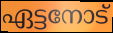
ഏട്ടനോട്